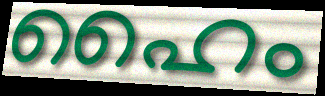
ഹൈം